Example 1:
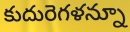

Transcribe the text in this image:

కుదురెగళన్నూ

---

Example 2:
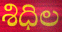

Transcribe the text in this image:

శిధిల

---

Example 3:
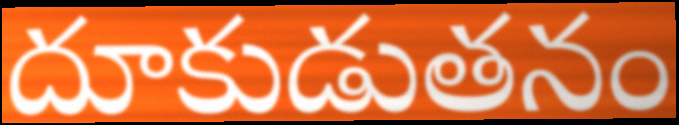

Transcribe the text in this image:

దూకుడుతనం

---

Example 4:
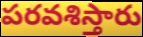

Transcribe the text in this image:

పరవశిస్తారు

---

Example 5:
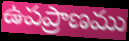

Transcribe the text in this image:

ఉపప్రాణము